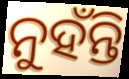
ନୁହଁନ୍ତି